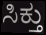
ಸಿಕ್ತು